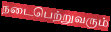
நடைபெற்றுவரும்